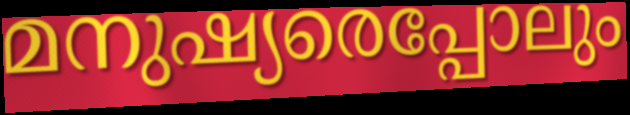
മനുഷ്യരെപ്പോലും